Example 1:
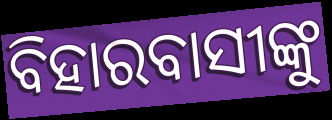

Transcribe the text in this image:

ବିହାରବାସୀଙ୍କୁ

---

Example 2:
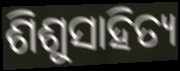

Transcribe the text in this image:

ଶିଶୁସାହିତ୍ୟ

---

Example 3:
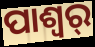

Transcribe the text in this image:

ପାଶ୍ୱର୍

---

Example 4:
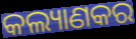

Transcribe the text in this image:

କଲ୍ୟାଣକର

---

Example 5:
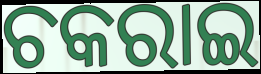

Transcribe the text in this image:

ଚକରାଇ